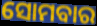
ସୋମବାର